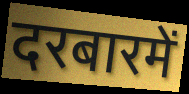
दरबारमें